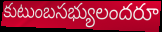
కుటుంబసభ్యులందరూ